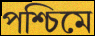
পশ্চিমে